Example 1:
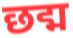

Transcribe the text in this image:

छद्म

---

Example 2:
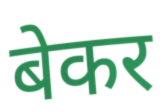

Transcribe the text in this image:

बेकर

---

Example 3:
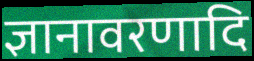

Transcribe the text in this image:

ज्ञानावरणादि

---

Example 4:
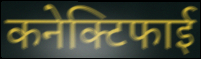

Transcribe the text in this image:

कनेक्टिफाई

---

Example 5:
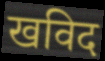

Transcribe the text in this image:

खविद